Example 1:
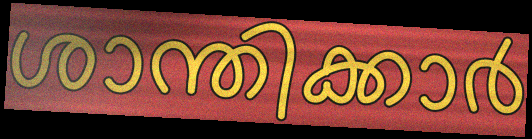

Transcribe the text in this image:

ശാന്തിക്കാർ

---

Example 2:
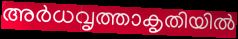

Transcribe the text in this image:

അർധവൃത്താകൃതിയിൽ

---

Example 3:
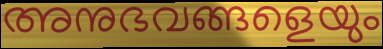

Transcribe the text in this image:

അനുഭവങ്ങളെയും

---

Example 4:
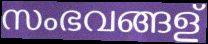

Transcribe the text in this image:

സംഭവങ്ങള്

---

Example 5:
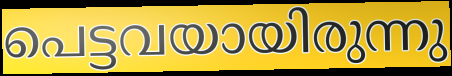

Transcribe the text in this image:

പെട്ടവയായിരുന്നു